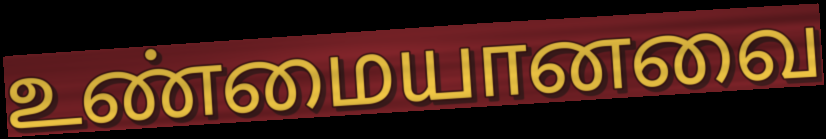
உண்மையானவை